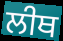
ਲੀਥ